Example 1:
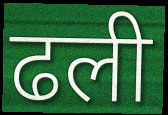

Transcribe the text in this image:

ढली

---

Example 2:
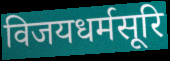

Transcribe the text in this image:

विजयधर्मसूरि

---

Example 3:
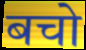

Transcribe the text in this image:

बचो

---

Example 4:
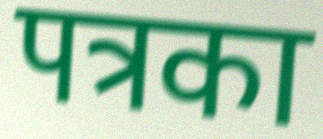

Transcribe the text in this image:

पत्रका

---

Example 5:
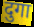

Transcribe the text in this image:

दुगा